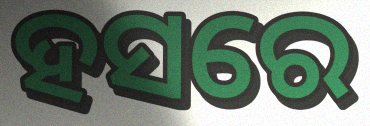
ହସରେ